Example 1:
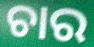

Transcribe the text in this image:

ଚାର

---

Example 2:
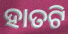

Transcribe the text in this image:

ହାତଟି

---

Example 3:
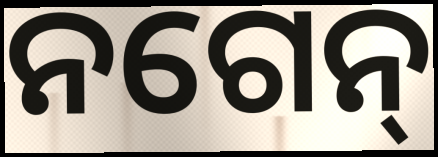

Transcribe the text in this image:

ନଗେନ୍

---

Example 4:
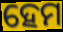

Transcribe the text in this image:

ହେମ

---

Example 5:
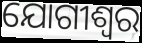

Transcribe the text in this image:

ଯୋଗୀଶ୍ୱର